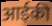
आईकी